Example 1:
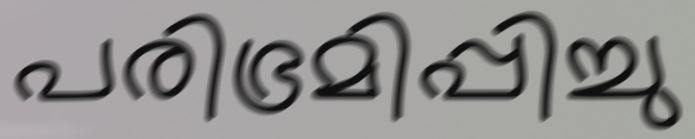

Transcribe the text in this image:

പരിഭ്രമിപ്പിച്ചു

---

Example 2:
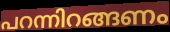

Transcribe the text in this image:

പറന്നിറങ്ങണം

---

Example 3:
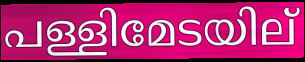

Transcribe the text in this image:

പള്ളിമേടയില്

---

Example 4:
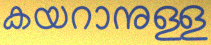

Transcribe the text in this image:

കയറാനുള്ള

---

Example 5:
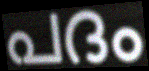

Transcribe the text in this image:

പദം